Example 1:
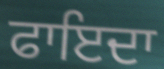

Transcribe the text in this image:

ਫਾਇਦਾ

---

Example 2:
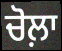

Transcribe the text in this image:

ਚੋਲ਼ਾ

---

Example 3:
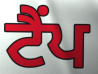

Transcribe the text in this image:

ਟੈਂਪ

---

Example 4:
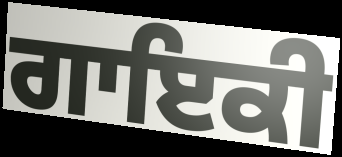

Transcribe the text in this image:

ਗਾਇਕੀ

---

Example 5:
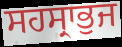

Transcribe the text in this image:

ਸਹਸ੍ਰਾਭੁਜ